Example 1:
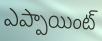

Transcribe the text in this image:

ఎప్పాయింట్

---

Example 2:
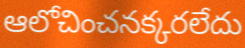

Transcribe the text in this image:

ఆలోచించనక్కరలేదు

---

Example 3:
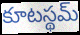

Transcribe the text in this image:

కూటస్థమ్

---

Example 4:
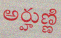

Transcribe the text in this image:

అర్హుణ్ణి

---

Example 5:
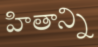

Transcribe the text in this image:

హితాన్ని